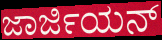
ಜಾರ್ಜಿಯನ್